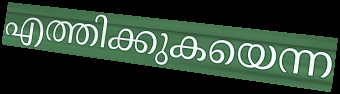
എത്തിക്കുകയെന്ന